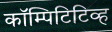
कॉम्पिटिटिव्ह